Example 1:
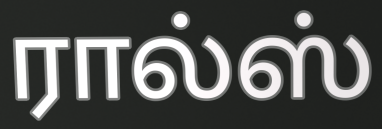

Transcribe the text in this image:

ரால்ஸ்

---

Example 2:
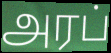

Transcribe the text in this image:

அரப்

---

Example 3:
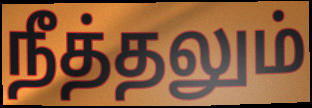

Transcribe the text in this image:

நீத்தலும்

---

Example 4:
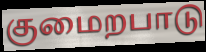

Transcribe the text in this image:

குமைறபாடு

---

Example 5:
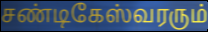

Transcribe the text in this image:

சண்டிகேஸ்வரரும்